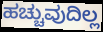
ಹಚ್ಚುವುದಿಲ್ಲ